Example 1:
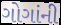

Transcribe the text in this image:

ગોગાંની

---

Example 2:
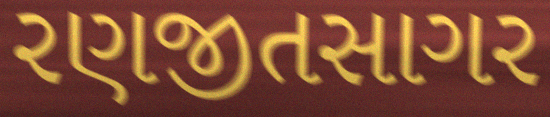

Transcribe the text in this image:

રણજીતસાગર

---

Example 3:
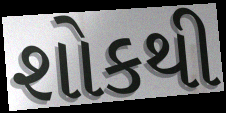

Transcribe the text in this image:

શોકથી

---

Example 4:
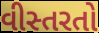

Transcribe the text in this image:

વીસ્તરતો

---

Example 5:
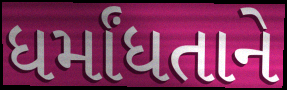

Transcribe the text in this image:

ધર્માંધતાને